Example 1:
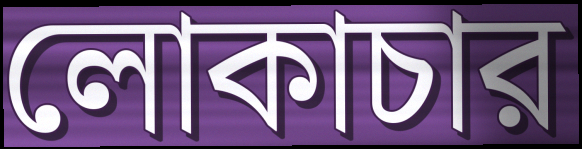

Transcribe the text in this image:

লোকাচার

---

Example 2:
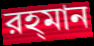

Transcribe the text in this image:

রহ্‌মান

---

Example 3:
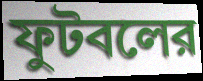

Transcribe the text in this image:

ফুটবলের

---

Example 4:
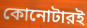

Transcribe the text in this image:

কোনোটারই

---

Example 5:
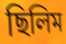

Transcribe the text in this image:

ছিলিম